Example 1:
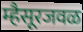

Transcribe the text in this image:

म्हैसूरजवळ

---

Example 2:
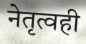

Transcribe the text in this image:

नेतृत्वही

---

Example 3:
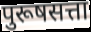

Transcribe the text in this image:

पुरूषसत्ता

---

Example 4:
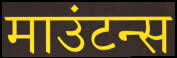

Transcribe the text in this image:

माउंटन्स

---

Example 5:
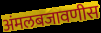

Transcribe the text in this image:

अंमलबजावणीस